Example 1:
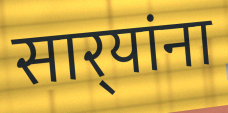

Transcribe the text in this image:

सार्‍यांना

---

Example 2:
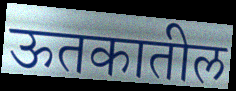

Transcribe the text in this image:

ऊतकातील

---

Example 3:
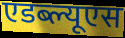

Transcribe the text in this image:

एडब्ल्यूएस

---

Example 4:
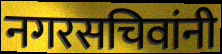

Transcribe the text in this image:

नगरसचिवांनी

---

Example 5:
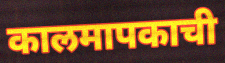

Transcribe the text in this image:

कालमापकाची